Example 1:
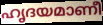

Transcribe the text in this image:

ഹൃദയമാണീ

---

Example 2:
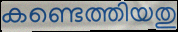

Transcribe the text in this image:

കണ്ടെത്തിയതു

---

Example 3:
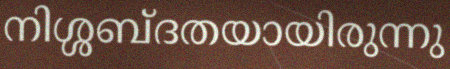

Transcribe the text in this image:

നിശ്ശബ്ദതയായിരുന്നു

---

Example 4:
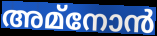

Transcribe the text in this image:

അമ്നോൻ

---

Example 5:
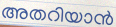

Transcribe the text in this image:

അതറിയാൻ